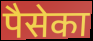
पैसेका